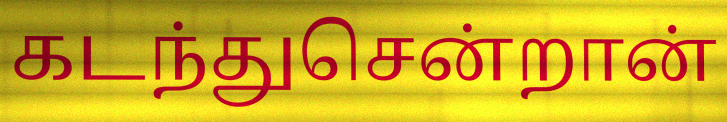
கடந்துசென்றான்